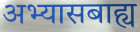
अभ्यासबाह्य